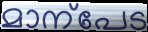
മാന്പേട